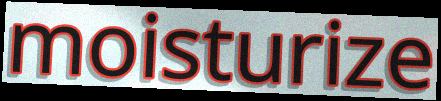
moisturize